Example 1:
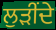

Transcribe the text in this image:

ਲੁੜੀਂਦੇ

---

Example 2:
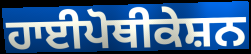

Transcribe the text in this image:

ਹਾਈਪੋਥੀਕੇਸ਼ਨ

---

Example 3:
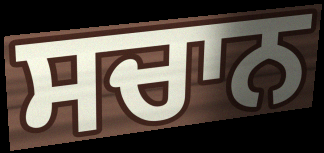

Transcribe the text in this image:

ਸਚਾਨ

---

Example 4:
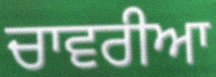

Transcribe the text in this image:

ਚਾਵਰੀਆ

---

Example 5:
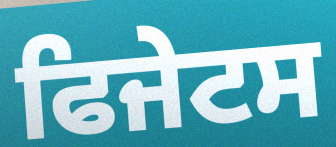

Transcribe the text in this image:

ਫਿਜੇਟਸ